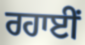
ਰਹਾਈਂ